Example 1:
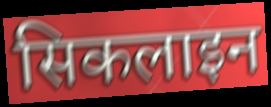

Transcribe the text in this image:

सिकलाइन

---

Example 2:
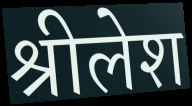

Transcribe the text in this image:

श्रीलेश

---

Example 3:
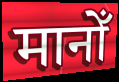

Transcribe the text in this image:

मानोँ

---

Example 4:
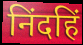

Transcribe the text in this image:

निंदहिं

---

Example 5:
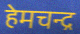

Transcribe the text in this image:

हेमचन्द्र